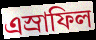
এস্রাফিল